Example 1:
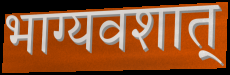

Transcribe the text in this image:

भाग्यवशात्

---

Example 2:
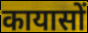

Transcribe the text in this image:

कायासों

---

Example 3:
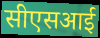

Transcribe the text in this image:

सीएसआई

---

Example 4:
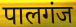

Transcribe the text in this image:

पालगंज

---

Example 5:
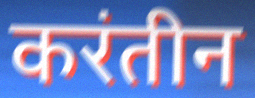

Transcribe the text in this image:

करंतीन